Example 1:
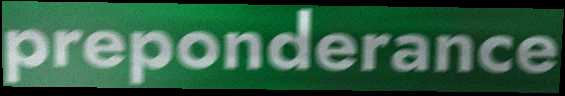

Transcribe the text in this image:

preponderance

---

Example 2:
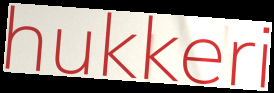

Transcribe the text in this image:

hukkeri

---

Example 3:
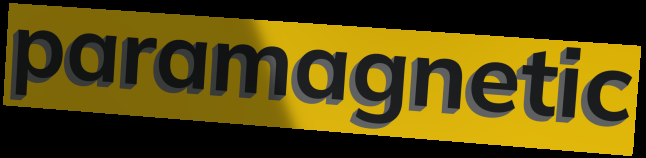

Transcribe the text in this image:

paramagnetic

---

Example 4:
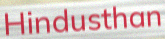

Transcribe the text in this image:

Hindusthan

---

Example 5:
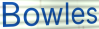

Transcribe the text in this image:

Bowles